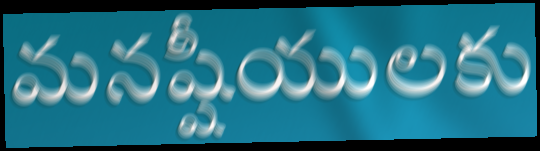
మనష్షీయులకు